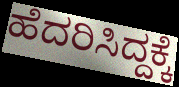
ಹೆದರಿಸಿದ್ದಕ್ಕೆ